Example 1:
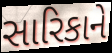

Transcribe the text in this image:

સારિકાને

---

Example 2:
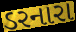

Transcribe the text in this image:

ડરનારા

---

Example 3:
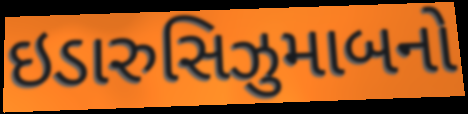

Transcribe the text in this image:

ઇડારુસિઝુમાબનો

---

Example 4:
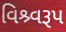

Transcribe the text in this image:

વિશ્ર્વરૂપ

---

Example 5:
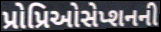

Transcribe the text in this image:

પ્રોપ્રિઓસેપ્શનની